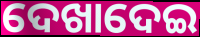
ଦେଖାଦେଇ